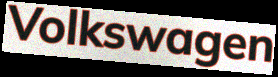
Volkswagen